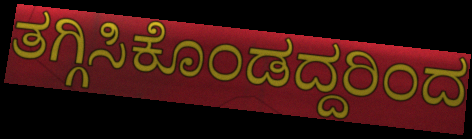
ತಗ್ಗಿಸಿಕೊಂಡದ್ದರಿಂದ